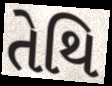
તેથિ